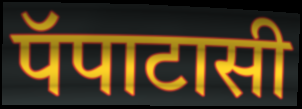
पॅपाटासी